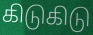
கிடுகிடு